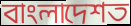
বাংলাদেশত